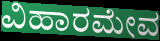
ವಿಹಾರಮೇವ